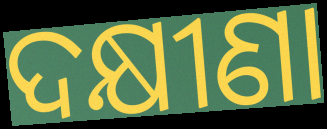
ଦକ୍ଷୀଣା